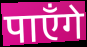
पाएँगे